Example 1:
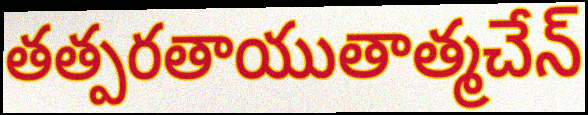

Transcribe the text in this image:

తత్పరతాయుతాత్మచేన్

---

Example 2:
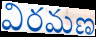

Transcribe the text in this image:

విరమణ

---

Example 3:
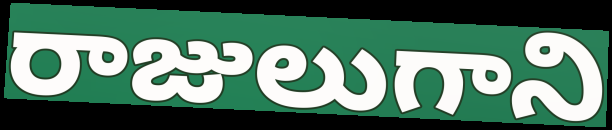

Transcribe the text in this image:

రాజులుగాని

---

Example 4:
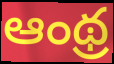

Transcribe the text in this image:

ఆంథ్ర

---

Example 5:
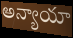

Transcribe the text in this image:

అన్యాయా